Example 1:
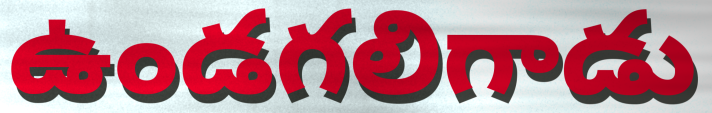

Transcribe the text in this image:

ఉండగలిగాడు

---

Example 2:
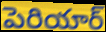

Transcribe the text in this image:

పెరియార్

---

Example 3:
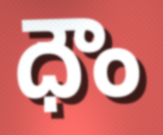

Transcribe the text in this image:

ధౌం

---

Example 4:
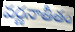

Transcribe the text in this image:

వర్ణనాతీతం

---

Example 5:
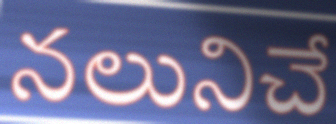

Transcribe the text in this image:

నలునిచే